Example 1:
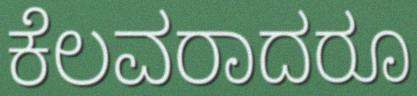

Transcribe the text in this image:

ಕೆಲವರಾದರೂ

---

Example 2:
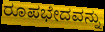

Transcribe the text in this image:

ರೂಪಭೇದವನ್ನು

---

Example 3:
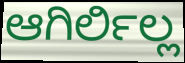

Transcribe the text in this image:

ಆಗಿರ್ಲಿಲ್ಲ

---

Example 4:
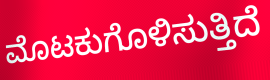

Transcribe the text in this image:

ಮೊಟಕುಗೊಳಿಸುತ್ತಿದೆ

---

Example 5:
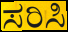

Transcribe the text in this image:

ಸರಿಸಿ